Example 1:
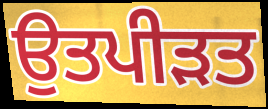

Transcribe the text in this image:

ਉਤਪੀੜਤ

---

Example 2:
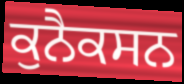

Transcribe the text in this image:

ਕੁਨੈਕਸਨ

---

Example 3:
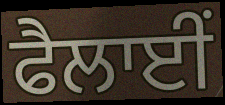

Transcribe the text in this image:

ਫੈਲਾਈਂ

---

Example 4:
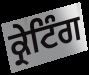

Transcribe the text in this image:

ਕ੍ਰੇਟਿੰਗ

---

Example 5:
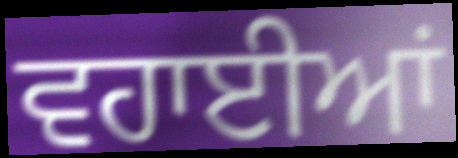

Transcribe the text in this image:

ਵਹਾਈਆਂ